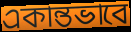
একান্তভাবে